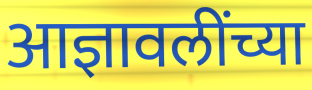
आज्ञावलींच्या